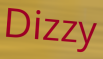
Dizzy